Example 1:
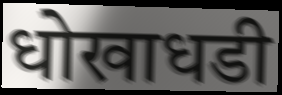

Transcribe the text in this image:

धोखाधडी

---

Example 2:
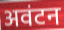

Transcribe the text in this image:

अवंटन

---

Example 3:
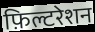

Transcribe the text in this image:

फ़िल्टरेशन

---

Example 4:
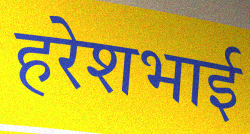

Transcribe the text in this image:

हरेशभाई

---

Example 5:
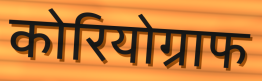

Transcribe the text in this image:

कोरियोग्राफ